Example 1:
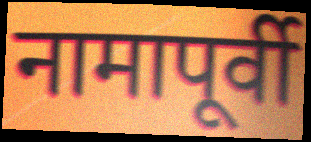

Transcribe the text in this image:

नामापूर्वी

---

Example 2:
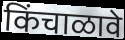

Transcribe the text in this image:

किंचाळावे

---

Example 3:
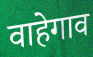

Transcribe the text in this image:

वाहेगाव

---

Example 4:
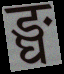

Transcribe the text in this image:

ङ्घ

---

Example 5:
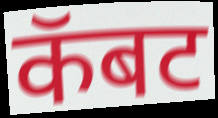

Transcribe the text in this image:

कॅबट